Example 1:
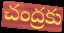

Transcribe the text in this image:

చంద్రకు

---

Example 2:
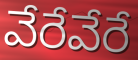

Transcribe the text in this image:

వేరేవేరే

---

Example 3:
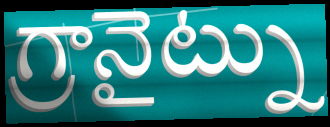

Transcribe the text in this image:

గ్రానైట్ను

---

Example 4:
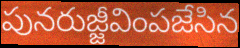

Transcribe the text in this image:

పునరుజ్జీవింపజేసిన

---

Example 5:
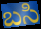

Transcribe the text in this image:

బసి